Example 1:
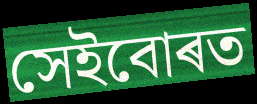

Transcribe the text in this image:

সেইবোৰত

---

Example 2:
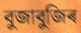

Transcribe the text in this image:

বুজাবুজিৰ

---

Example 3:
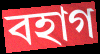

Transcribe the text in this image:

বহাগ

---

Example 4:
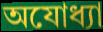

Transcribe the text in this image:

অযোধ্যা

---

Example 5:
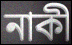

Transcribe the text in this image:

নাকী